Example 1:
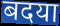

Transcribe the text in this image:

बदया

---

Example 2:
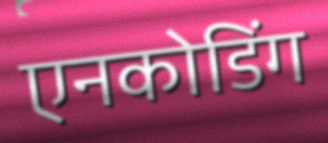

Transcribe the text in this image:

एनकोडिंग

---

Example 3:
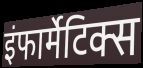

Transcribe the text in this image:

इंफार्मेटिक्स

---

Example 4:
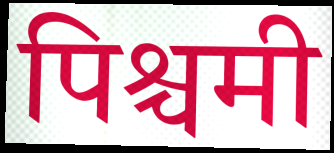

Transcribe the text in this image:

पिश्चमी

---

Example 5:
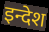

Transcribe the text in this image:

इन्देश